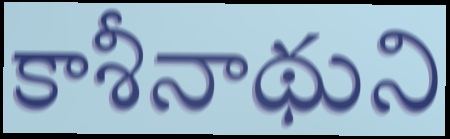
కాశీనాథుని